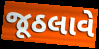
જૂઠલાવે